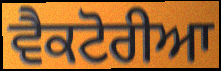
ਵੈਕਟੋਰੀਆ